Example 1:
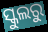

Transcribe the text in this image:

ସ୍କୁଲରୁ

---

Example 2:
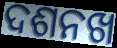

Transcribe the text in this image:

ଦଶନଖ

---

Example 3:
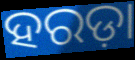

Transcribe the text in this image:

ହରଡ଼ା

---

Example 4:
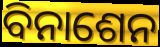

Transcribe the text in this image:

ବିନାଶେନ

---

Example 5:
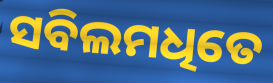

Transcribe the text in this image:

ସବିଲମଧିତେ